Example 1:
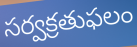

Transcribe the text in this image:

సర్వక్రతుఫలం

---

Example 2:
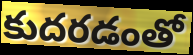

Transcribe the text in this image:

కుదరడంతో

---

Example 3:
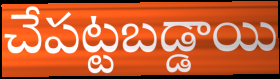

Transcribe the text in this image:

చేపట్టబడ్డాయి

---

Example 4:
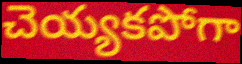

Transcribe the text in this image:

చెయ్యకపోగా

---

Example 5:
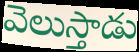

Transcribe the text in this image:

వెలుస్తాడు